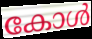
കോൾ